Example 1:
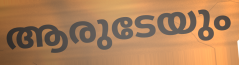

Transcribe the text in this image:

ആരുടേയും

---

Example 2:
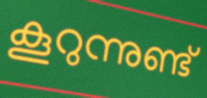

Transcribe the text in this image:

കൂറുന്നുണ്ട്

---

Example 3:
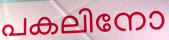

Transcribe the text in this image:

പകലിനോ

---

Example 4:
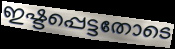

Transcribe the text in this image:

ഇഷ്ടപ്പെട്ടതോടെ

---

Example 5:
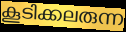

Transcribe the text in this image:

കൂടിക്കലരുന്ന